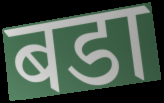
बडा